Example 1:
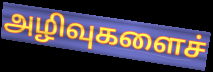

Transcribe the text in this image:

அழிவுகளைச்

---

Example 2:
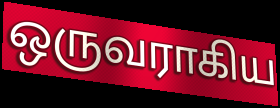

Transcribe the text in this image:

ஒருவராகிய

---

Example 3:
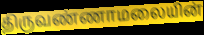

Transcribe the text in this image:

திருவண்ணாமலையின்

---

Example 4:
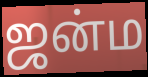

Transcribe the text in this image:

ஜன்ம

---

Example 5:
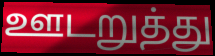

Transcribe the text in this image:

ஊடறுத்து